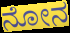
ನೋನ